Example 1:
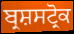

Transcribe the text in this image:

ਬ੍ਰਸ਼ਸਟ੍ਰੋਕ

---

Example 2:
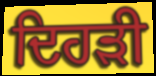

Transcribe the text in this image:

ਦਿਹੜੀ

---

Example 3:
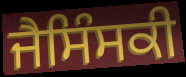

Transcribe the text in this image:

ਜੈਸਿੰਸਕੀ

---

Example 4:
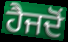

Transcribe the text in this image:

ਹੈਜਦੋਂ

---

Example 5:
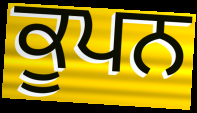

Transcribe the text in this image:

ਕੂਪਨ